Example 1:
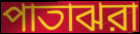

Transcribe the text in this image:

পাতাঝরা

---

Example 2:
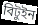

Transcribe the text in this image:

বিটুইন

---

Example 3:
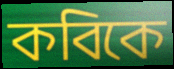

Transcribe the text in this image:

কবিকে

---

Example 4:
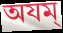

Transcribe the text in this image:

অযম্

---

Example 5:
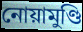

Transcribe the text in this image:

নোয়ামুণ্ডি